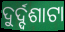
ଦୁର୍ଦ୍ଦଶାଟା